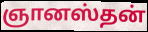
ஞானஸ்தன்